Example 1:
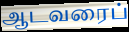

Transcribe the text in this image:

ஆடவரைப்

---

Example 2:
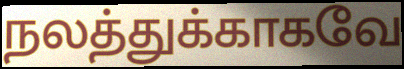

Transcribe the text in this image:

நலத்துக்காகவே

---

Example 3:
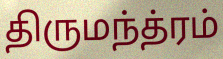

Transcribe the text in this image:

திருமந்த்ரம்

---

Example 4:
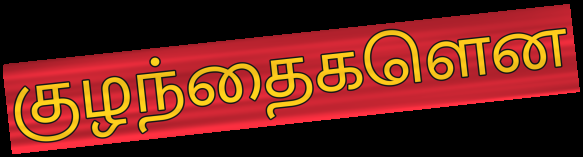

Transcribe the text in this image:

குழந்தைகளென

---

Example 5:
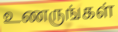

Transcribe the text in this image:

உணருங்கள்